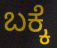
ಬಕ್ಕೆ